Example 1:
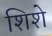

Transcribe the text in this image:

शिशे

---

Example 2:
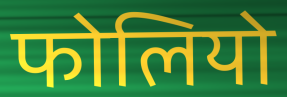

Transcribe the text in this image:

फोलियो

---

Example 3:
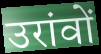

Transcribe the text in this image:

उरांवों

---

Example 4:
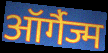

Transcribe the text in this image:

ऑर्गैज्म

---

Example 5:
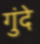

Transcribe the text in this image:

गुंदे